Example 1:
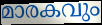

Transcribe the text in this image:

മാരകവും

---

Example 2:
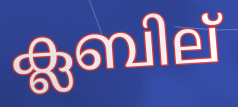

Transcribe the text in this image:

ക്ലബില്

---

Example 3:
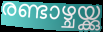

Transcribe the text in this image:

രണ്ടാഴ്ചയ്ക്കു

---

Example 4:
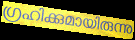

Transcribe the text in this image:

ഗ്രഹിക്കുമായിരുന്നു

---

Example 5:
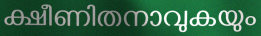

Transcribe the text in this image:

ക്ഷീണിതനാവുകയും